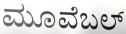
ಮೂವೆಬಲ್